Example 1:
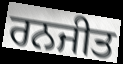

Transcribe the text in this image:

ਰਨਜੀਤ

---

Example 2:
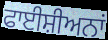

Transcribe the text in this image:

ਫਾਈਸ਼ੀਅਨਾਂ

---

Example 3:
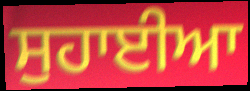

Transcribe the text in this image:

ਸੁਹਾਈਆ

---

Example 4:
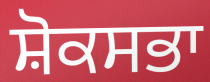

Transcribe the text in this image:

ਸ਼ੋਕਸਭਾ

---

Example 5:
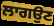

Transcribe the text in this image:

ਲਾਗਉਣ